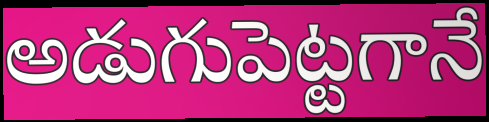
అడుగుపెట్టగానే